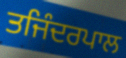
ਤਜਿੰਦਰਪਾਲ